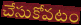
చేసుకోవటం